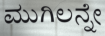
ಮುಗಿಲನ್ನೇ